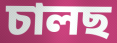
চালছ